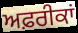
ਅਫ਼ਰੀਕਾਂ